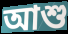
আশু